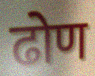
ढोण